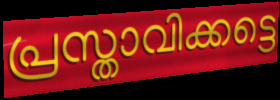
പ്രസ്താവിക്കട്ടെ